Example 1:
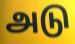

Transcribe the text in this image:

அடு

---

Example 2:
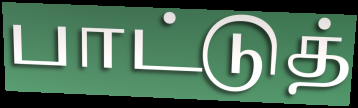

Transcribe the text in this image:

பாட்டுத்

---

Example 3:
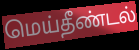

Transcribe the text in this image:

மெய்தீண்டல்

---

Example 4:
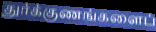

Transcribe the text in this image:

துர்க்குணங்களைப்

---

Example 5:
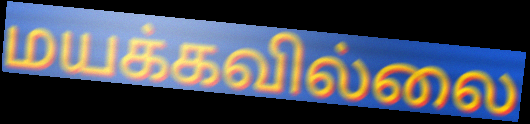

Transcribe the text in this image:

மயக்கவில்லை